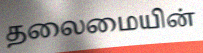
தலைமையின்